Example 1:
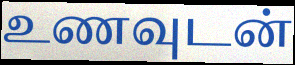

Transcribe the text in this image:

உணவுடன்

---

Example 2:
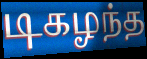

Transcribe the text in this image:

டிகழந்த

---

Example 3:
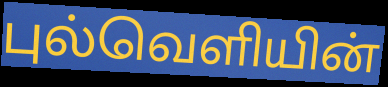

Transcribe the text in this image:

புல்வெளியின்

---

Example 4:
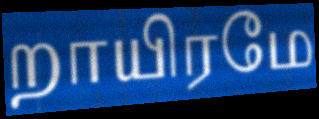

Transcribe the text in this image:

றாயிரமே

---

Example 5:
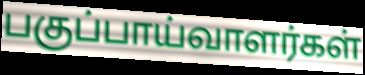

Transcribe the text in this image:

பகுப்பாய்வாளர்கள்